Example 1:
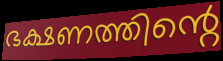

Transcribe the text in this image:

ഭക്ഷണത്തിന്റെ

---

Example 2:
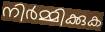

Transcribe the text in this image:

നിർമ്മിക്കുക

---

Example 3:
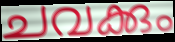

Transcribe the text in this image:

ചവക്കും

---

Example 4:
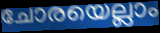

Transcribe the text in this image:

ചോരയെല്ലാം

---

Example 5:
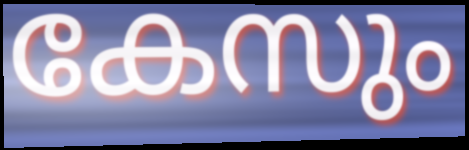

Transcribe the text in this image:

കേസും